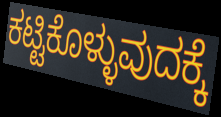
ಕಟ್ಟಿಕೊಳ್ಳುವುದಕ್ಕೆ